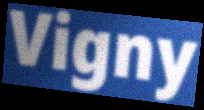
Vigny